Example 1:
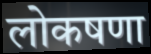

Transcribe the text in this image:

लोकषणा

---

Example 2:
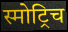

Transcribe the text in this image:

स्मोट्रिच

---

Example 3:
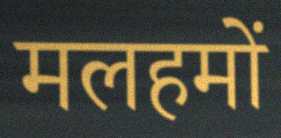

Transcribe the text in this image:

मलहमों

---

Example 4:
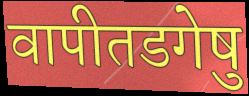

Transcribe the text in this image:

वापीतडगेषु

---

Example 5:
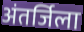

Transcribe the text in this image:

अंतर्जिला